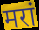
मरां